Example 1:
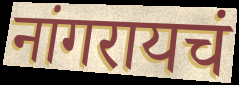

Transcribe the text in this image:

नांगरायचं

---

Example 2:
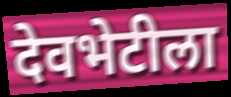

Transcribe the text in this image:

देवभेटीला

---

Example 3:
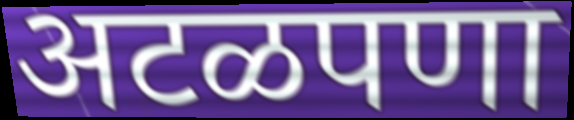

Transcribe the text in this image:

अटळपणा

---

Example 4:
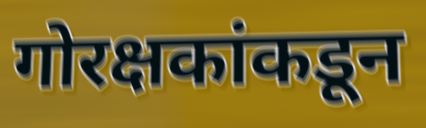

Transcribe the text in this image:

गोरक्षकांकडून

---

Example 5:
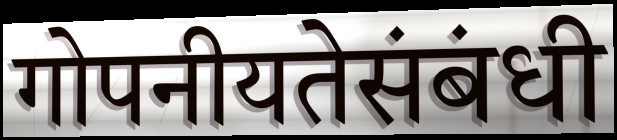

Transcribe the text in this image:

गोपनीयतेसंबंधी